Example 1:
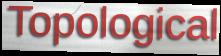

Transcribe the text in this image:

Topological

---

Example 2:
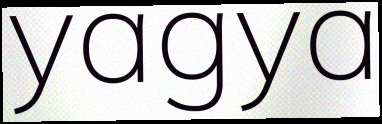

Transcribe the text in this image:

yagya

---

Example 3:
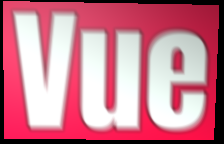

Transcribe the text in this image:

Vue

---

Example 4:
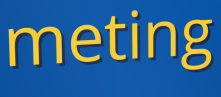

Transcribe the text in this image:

meting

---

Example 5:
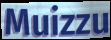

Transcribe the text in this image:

Muizzu